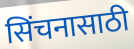
सिंचनासाठी